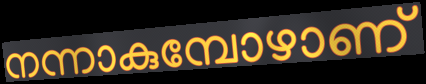
നന്നാകുമ്പോഴാണ്